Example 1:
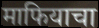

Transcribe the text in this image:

माफियाचा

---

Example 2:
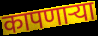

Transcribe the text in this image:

कापणाऱ्या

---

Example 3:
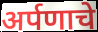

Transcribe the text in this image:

अर्पणाचे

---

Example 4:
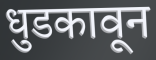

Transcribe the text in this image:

धुडकावून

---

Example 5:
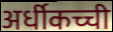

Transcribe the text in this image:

अर्धीकच्ची